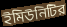
ইমিউনিটির